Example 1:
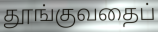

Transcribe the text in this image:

தூங்குவதைப்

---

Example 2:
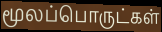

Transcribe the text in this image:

மூலப்பொருட்கள்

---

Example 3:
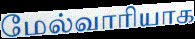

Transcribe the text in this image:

மேல்வாரியாக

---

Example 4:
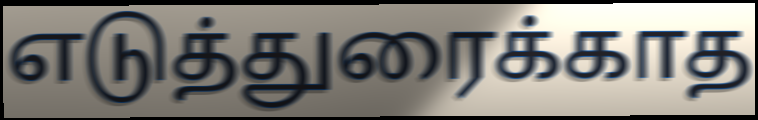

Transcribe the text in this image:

எடுத்துரைக்காத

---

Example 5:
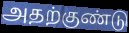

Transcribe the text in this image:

அதற்குண்டு